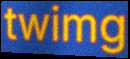
twimg